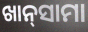
ଖାନ୍‍ସାମା